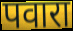
पवारा